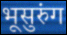
भूसुरुंग